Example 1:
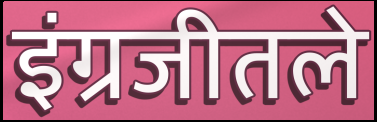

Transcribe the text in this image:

इंग्रजीतले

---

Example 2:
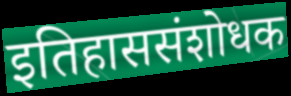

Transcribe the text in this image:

इतिहाससंशोधक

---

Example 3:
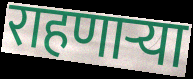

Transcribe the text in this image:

राहणार्‍या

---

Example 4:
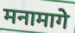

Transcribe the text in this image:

मनामागे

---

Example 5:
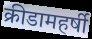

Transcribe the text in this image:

क्रीडामहर्षी